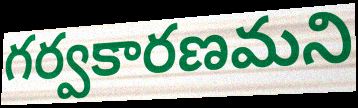
గర్వకారణమని